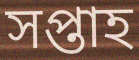
সপ্তাহ